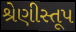
શ્રેણીસ્તૂપ